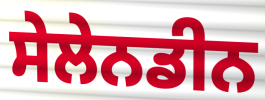
ਸੇਲੇਨਡੀਨ